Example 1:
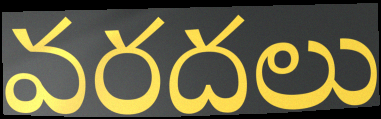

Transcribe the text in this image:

వరదలు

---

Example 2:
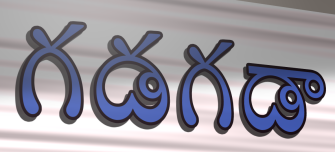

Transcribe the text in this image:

గడగడా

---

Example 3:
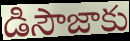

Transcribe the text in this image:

డిసౌజాకు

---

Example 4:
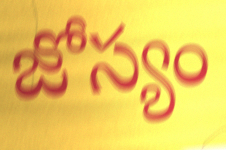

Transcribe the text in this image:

జోస్యం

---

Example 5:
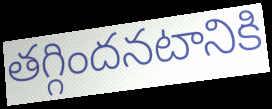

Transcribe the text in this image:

తగ్గిందనటానికి